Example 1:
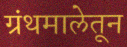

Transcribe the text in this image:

ग्रंथमालेतून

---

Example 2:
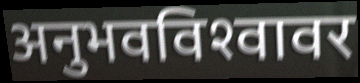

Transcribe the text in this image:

अनुभवविश्वावर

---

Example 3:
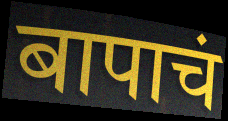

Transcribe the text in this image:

बापाचं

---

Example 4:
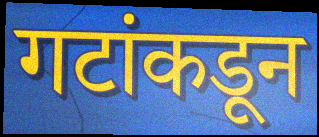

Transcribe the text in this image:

गटांकडून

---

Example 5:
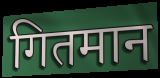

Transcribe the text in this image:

गितमान